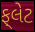
ફ્‌લેટ